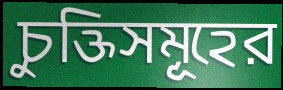
চুক্তিসমূহের